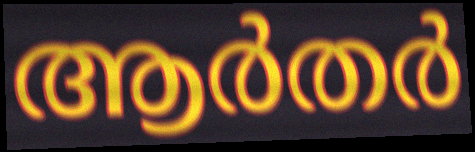
ആർതർ